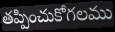
తప్పించుకోగలము